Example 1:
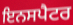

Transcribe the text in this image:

ਇਨਸਪੈਟਰ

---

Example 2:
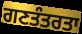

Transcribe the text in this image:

ਗਣਤੰਤਰਤਾ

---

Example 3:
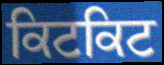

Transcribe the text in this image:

ਕਿਟਕਿਟ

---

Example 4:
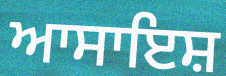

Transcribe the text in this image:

ਆਸਾਇਸ਼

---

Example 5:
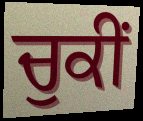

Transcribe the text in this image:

ਚੁਕੀਂ